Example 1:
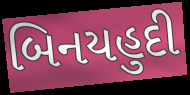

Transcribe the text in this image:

બિનયહુદી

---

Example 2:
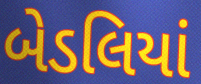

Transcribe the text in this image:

બેડલિયાં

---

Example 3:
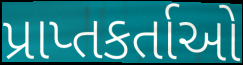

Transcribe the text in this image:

પ્રાપ્તકર્તાઓ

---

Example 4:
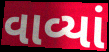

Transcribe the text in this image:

વાવ્યાં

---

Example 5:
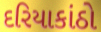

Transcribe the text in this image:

દરિયાકાંઠો